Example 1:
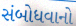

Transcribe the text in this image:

સંબોધવાનો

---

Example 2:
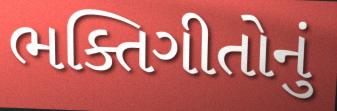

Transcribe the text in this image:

ભક્તિગીતોનું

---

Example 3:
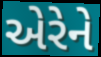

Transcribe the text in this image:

એરેને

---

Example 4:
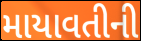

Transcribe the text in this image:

માયાવતીની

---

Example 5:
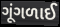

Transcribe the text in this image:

ગૂંગળાઈ